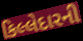
કિલ્લેદારની